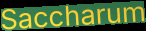
Saccharum